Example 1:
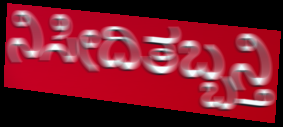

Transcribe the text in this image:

ನಿಸೀದಿತಬ್ಬನ್ತಿ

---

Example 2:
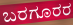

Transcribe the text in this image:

ಬರಗೂರರ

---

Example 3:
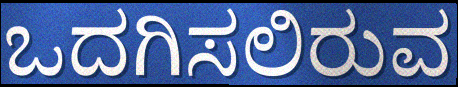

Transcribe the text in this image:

ಒದಗಿಸಲಿರುವ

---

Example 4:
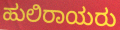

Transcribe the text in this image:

ಹುಲಿರಾಯರು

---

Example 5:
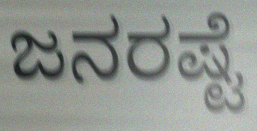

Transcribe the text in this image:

ಜನರಷ್ಟೆ